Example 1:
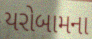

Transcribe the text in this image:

યરોબામના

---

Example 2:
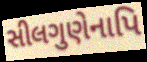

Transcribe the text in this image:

સીલગુણેનાપિ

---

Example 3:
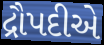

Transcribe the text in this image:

દ્રૌપદીએ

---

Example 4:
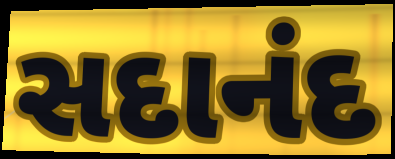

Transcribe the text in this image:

સદાનંદ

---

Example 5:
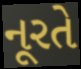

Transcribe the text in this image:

નૂરતે